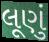
લૂણું